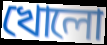
খোলো